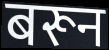
बरून